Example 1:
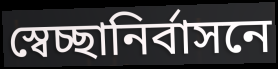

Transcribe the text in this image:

স্বেচ্ছানির্বাসনে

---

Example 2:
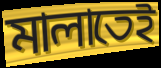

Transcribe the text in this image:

মালাতেই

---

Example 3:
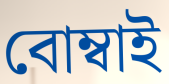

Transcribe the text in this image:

বোম্বাই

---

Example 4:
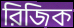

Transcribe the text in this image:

রিজিক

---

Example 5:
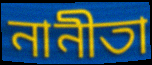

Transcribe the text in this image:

নানীতা